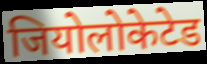
जियोलोकेटेड